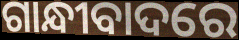
ଗାନ୍ଧୀବାଦରେ